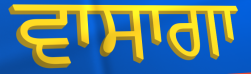
ਵਾਸਾਗਾ